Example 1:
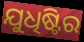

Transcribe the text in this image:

ଯୁଧିଷ୍ଟିର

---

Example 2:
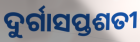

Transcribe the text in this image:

ଦୁର୍ଗାସପ୍ତଶତୀ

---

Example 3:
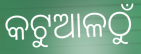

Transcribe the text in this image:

କଟୁଆଳଠୁଁ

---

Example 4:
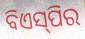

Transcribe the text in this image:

ବିଏସ୍‌ପିର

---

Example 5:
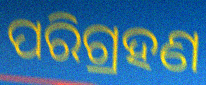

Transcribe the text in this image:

ପରିଗ୍ରହଣ